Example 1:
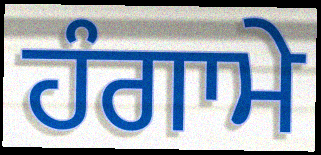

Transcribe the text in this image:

ਹੰਗਾਮੇ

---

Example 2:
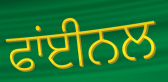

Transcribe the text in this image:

ਫਾਂਈਨਲ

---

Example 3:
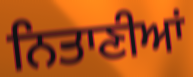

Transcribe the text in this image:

ਨਿਤਾਣੀਆਂ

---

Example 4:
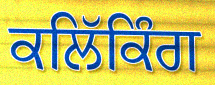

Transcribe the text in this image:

ਕਲਿੱਕਿੰਗ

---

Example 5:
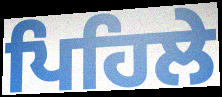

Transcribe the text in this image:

ਪਿਹਿਲੇ